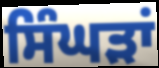
ਸਿੰਘੜਾਂ